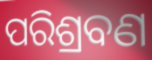
ପରିଶ୍ରବଣ